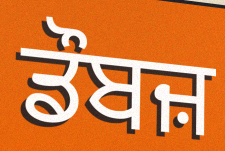
ਡੌਬਜ਼